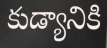
కుడ్యానికి